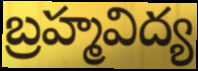
బ్రహ్మవిద్య